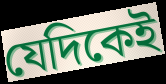
যেদিকেই